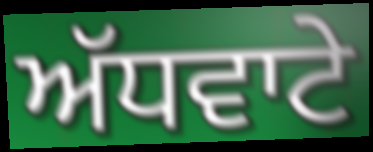
ਅੱਧਵਾਟੇ